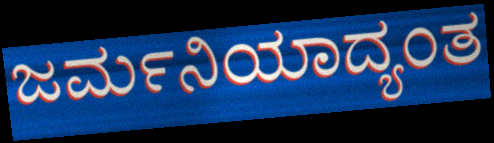
ಜರ್ಮನಿಯಾದ್ಯಂತ